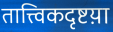
तात्त्विकदृष्टय़ा